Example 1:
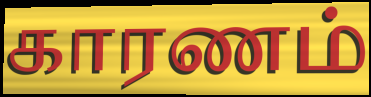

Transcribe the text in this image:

காரணம்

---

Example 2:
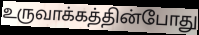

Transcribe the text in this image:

உருவாக்கத்தின்போது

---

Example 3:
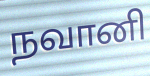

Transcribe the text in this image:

நவானி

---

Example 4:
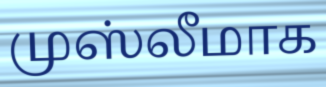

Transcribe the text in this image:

முஸ்லீமாக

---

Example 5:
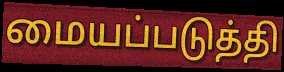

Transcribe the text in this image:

மையப்படுத்தி